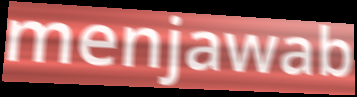
menjawab